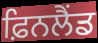
ਫ਼ਿਨਲੈਂਡ